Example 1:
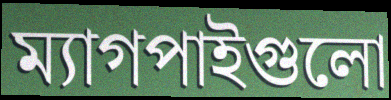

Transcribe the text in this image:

ম্যাগপাইগুলো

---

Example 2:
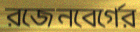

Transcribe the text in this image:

রজেনবের্গের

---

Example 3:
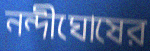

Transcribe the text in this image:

নন্দীঘোষের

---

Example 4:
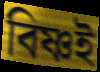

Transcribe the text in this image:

বিষ্ণই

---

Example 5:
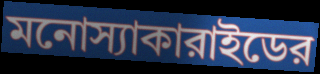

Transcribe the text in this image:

মনোস্যাকারাইডের